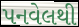
પનવેલથી